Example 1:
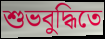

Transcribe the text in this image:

শুভবুদ্ধিতে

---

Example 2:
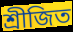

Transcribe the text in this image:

শ্রীজিত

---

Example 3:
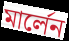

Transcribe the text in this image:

মার্লেন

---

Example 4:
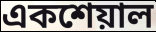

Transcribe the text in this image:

একশেয়াল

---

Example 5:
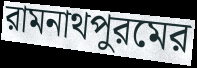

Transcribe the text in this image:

রামনাথপুরমের